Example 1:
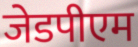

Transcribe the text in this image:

जेडपीएम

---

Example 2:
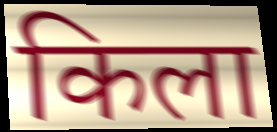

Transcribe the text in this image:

किला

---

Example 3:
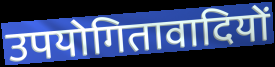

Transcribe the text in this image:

उपयोगितावादियों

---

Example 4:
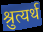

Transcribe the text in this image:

श्रुत्यर्थ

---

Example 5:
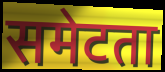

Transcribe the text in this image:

समेटता